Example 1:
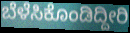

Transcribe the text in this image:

ಬೆಳೆಸಿಕೊಂಡಿದ್ದೀರಿ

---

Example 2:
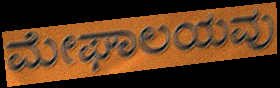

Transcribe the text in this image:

ಮೇಘಾಲಯವು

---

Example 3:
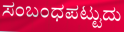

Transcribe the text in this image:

ಸಂಬಂಧಪಟ್ಟುದು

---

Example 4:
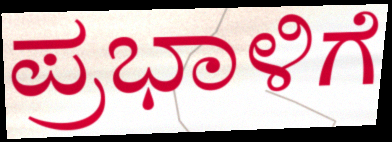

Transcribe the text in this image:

ಪ್ರಭಾಳಿಗೆ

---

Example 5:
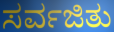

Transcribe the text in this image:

ಸರ್ವಜಿತು